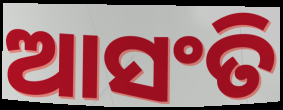
ଆସଂତି